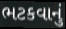
ભટકવાનું